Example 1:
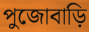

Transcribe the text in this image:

পুজোবাড়ি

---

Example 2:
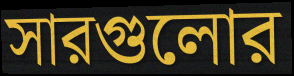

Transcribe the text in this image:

সারগুলোর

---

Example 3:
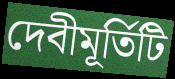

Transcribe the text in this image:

দেবীমূর্তিটি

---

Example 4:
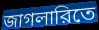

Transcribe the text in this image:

জাগলারিতে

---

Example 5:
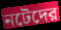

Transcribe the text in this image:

নটেদের